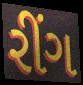
રીંગ